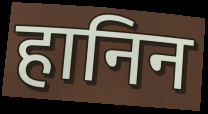
हानिन